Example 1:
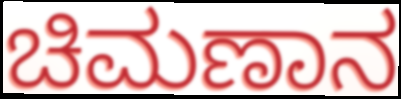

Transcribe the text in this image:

ಚಿಮಣಾನ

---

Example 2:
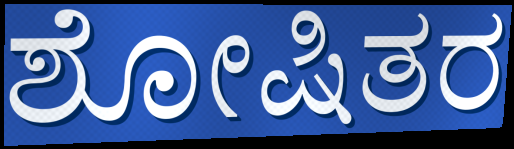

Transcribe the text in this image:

ಶೋಷಿತರ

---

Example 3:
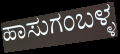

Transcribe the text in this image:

ಹಾಸುಗಂಬಳ್ಳ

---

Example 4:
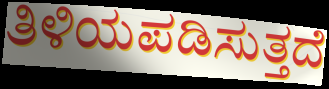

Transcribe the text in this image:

ತಿಳಿಯಪಡಿಸುತ್ತದೆ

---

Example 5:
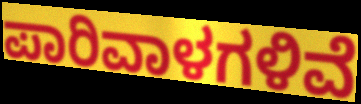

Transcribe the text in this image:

ಪಾರಿವಾಳಗಳಿವೆ